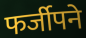
फर्जीपने